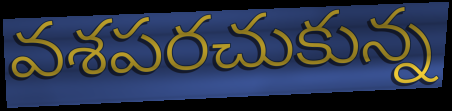
వశపరచుకున్న